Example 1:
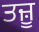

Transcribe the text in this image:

ਤਜ਼ੂ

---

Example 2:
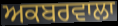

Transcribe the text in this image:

ਅਕਬਰਵਾਲਾ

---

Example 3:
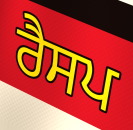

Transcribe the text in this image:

ਰੈਸਪ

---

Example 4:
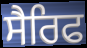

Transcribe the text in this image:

ਸੈਰਿਫ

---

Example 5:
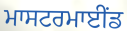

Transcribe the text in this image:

ਮਾਸਟਰਮਾਈਂਡ